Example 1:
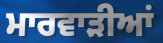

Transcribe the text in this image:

ਮਾਰਵਾੜੀਆਂ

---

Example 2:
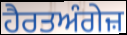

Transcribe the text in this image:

ਹੈਰਤਅੰਗੇਜ਼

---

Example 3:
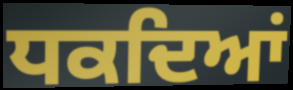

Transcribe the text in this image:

ਧਕਦਿਆਂ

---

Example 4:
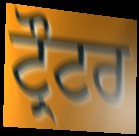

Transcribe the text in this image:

ਟ੍ਰੌਟਰ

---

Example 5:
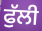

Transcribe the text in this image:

ਫੁੱਲੀ